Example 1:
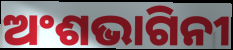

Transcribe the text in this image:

ଅଂଶଭାଗିନୀ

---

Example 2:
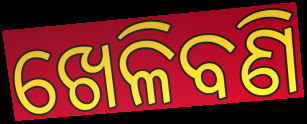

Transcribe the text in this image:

ଖେଳିବଣି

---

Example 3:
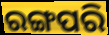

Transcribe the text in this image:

ରଙ୍ଗପରି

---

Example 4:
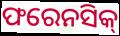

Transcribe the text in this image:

ଫରେନସିକ୍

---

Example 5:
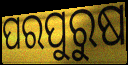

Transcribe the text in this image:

ପରପୁରୁଷ